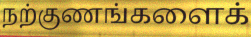
நற்குணங்களைக்